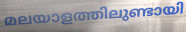
മലയാളത്തിലുണ്ടായി